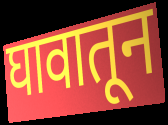
घावातून